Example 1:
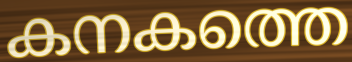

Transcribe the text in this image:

കനകത്തെ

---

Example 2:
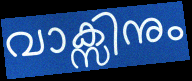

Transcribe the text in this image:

വാക്സിനും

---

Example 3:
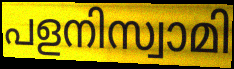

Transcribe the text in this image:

പളനിസ്വാമി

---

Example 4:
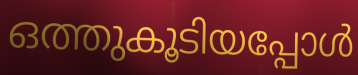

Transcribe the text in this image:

ഒത്തുകൂടിയപ്പോൾ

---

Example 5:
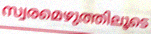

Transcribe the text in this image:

സ്വരമെഴുത്തിലൂടെ